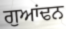
ਗੁਆਂਢਨ